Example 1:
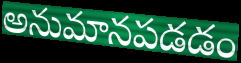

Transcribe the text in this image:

అనుమానపడడం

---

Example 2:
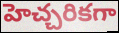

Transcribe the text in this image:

హెచ్చరికగా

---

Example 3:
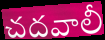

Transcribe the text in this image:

చదవాలీ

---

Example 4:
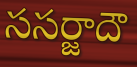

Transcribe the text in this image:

ససర్జాదౌ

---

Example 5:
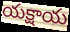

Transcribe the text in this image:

యక్షాయ